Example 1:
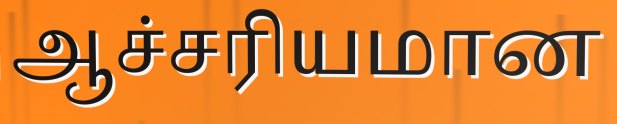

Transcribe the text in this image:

ஆச்சரியமான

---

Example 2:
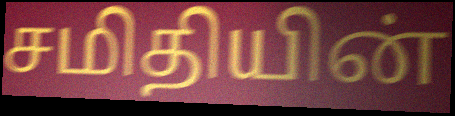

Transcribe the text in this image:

சமிதியின்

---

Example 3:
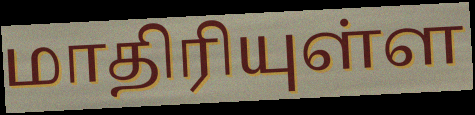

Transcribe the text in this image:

மாதிரியுள்ள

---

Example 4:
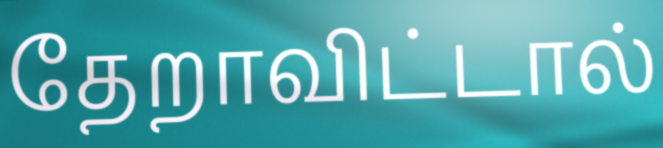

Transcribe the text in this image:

தேறாவிட்டால்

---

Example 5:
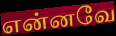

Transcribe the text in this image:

என்னவே